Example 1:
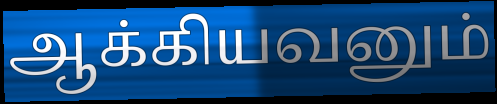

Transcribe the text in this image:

ஆக்கியவனும்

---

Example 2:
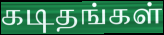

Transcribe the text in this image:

கடிதங்கள்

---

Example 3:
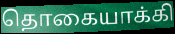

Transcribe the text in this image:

தொகையாக்கி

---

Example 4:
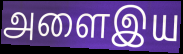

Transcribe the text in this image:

அளைஇய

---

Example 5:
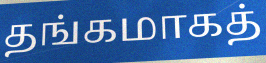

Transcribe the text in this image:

தங்கமாகத்